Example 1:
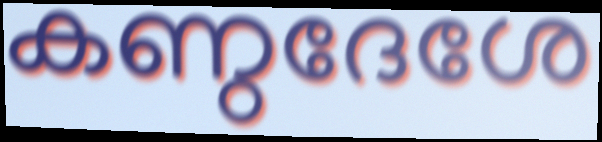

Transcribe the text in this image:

കണ്ഠദേശേ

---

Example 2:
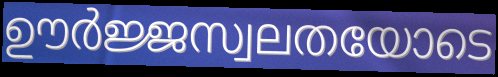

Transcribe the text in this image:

ഊർജ്ജസ്വലതയോടെ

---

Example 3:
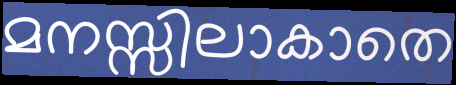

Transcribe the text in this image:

മനസ്സിലാകാതെ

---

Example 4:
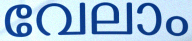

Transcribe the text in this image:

വേലാം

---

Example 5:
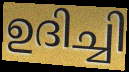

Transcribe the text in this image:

ഉദിച്ചി